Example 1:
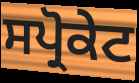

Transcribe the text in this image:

ਸਪ੍ਰੋਕੇਟ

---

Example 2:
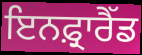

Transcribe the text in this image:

ਇਨਫ਼੍ਰਾਰੈੱਡ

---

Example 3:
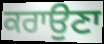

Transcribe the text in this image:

ਕਰਾਉਣਾ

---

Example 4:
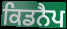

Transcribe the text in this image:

ਕਿਡਨੈਪ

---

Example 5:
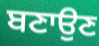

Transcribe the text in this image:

ਬਣਾਉਣ